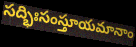
సద్భిఃసంస్తూయమానాం